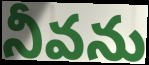
నీవను